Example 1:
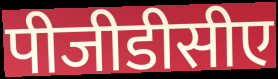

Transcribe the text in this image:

पीजीडीसीए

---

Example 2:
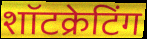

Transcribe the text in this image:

शॉटक्रेटिंग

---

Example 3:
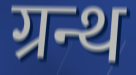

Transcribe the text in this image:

ग्रन्थ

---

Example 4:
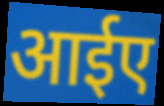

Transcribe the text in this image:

आईए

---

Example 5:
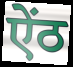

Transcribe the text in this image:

ऐंठ